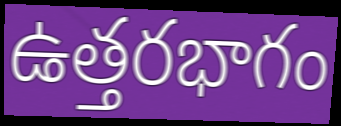
ఉత్తరభాగం